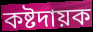
কষ্টদায়ক